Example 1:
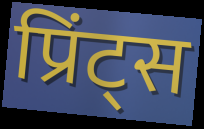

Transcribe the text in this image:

प्रिंट्स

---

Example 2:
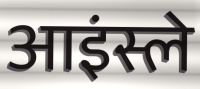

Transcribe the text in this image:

आइंस्ले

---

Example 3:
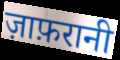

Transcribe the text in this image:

ज़ाफ़रानी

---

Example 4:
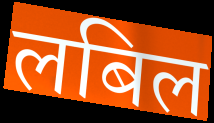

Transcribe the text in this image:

लबिल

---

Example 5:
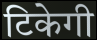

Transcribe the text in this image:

टिकेगी